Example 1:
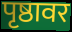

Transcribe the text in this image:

पृष्ठावर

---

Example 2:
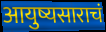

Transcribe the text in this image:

आयुष्यसाराचं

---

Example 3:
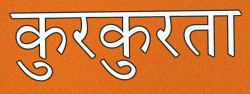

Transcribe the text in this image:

कुरकुरता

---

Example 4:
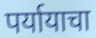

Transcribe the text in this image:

पर्यायाचा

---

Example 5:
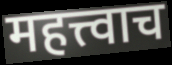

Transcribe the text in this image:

महत्त्वाच